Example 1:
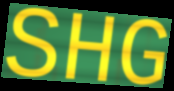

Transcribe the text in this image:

SHG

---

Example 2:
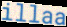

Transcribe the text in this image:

illaa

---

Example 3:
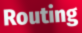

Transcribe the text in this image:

Routing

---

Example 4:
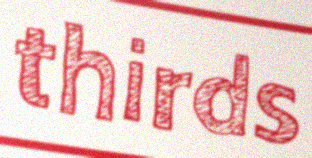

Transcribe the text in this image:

thirds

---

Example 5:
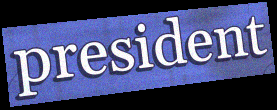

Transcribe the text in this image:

president